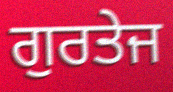
ਗੁਰਤੇਜ